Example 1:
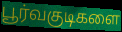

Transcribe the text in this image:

பூர்வகுடிகளை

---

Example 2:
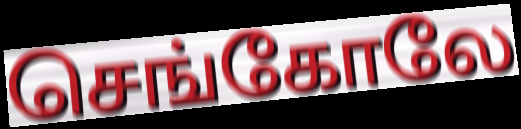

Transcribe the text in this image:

செங்கோலே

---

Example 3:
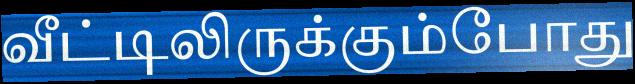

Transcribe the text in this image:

வீட்டிலிருக்கும்போது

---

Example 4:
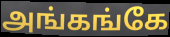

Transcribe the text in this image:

அங்கங்கே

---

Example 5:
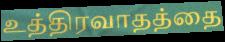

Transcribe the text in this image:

உத்திரவாதத்தை